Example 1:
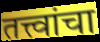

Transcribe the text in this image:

तत्त्वांचा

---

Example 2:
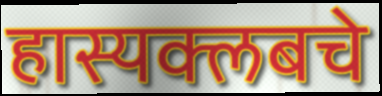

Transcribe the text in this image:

हास्यक्लबचे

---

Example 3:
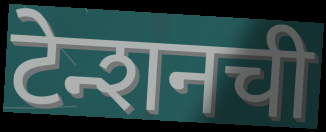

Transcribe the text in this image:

टेन्शनची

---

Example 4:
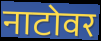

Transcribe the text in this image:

नाटोवर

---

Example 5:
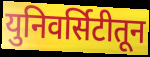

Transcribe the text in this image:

युनिवर्सिटीतून